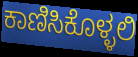
ಕಾಣಿಸಿಕೊಳ್ಳಲಿ